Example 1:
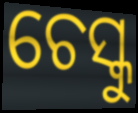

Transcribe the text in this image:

ଚେସ୍କୁ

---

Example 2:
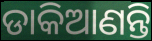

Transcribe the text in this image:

ଡାକିଆଣନ୍ତି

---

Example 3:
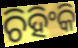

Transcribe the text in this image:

ଚିହିଂକି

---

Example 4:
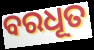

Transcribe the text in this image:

ବରଧୂତ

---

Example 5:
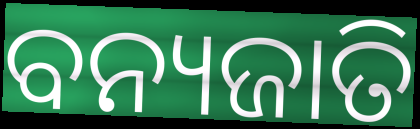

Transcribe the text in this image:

ବନ୍ୟଜାତି